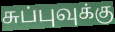
சுப்புவுக்கு